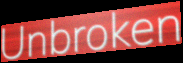
Unbroken